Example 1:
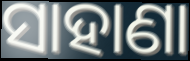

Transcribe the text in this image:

ସାହାଣା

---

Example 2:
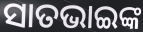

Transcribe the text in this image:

ସାତଭାଇଙ୍କ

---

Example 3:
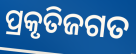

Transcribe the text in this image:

ପ୍ରକୃତିଜଗତ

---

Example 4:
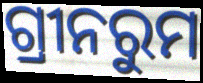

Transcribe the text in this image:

ଗ୍ରୀନରୁମ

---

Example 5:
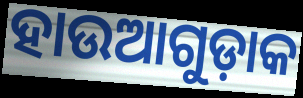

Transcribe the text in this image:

ହାଉଆଗୁଡ଼ାକ